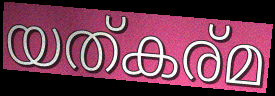
യത്കര്മ